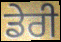
ਡੇਰੀ